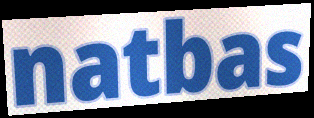
natbas